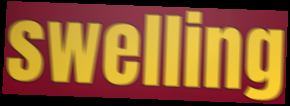
swelling